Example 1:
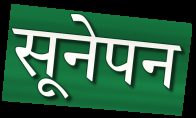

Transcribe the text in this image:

सूनेपन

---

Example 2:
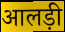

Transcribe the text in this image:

आलड़ी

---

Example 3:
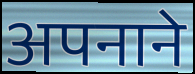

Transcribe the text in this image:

अपनाने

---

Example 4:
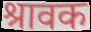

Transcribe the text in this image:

श्रावक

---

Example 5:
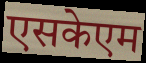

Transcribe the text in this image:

एसकेएम